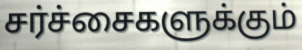
சர்ச்சைகளுக்கும்